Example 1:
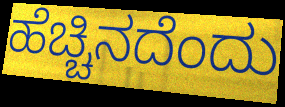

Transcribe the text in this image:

ಹೆಚ್ಚಿನದೆಂದು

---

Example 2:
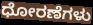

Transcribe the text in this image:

ಧೋರಣೆಗಳು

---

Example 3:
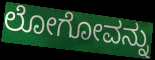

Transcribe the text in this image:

ಲೋಗೋವನ್ನು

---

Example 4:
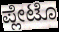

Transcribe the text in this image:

ಪ್ಲೇಟೊ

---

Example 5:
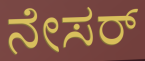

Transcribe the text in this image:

ನೇಸರ್